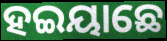
ହଇୟାଛେ